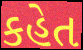
કહેત